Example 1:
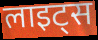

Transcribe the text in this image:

लाइट्स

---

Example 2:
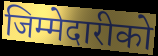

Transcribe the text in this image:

जिम्मेदारीको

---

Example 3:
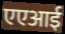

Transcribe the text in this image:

एएआई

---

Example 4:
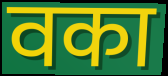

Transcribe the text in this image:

वका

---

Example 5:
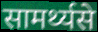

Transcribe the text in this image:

सामर्थ्यसे